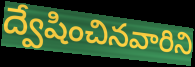
ద్వేషించినవారిని